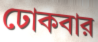
ঢোকবার